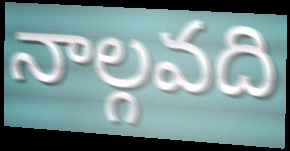
నాల్గవది